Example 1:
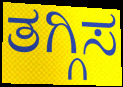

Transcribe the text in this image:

ತಗ್ಗಿಸ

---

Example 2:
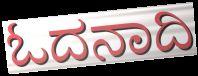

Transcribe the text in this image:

ಓದನಾದಿ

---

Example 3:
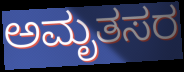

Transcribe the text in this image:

ಅಮೃತಸರ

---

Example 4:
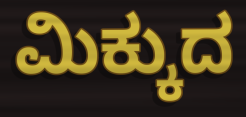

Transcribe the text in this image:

ಮಿಕ್ಕುದ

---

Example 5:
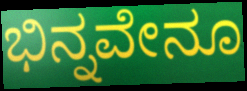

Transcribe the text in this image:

ಭಿನ್ನವೇನೂ